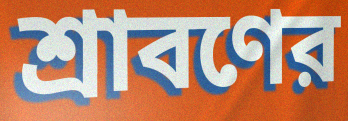
শ্রাবণের